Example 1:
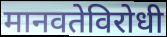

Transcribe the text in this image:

मानवतेविरोधी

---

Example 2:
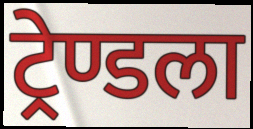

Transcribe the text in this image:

ट्रेण्डला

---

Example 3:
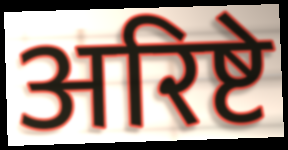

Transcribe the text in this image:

अरिष्टे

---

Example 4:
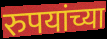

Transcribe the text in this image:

रुपयांच्या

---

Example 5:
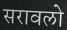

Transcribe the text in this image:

सरावलो